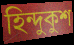
হিন্দুকুশ